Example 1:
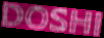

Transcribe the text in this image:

DOSHI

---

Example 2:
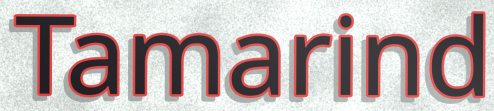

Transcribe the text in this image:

Tamarind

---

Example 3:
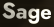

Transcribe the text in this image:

Sage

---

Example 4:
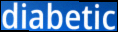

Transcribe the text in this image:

diabetic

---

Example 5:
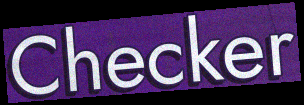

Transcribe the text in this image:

Checker